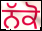
ਨੱਕੋ